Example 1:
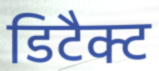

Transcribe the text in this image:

डिटैक्ट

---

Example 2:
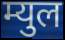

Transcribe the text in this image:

म्युल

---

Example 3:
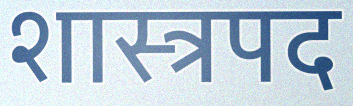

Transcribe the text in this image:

शास्त्रपद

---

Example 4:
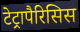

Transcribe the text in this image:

टेट्रापैरिसिस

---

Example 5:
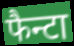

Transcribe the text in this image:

फैन्टा